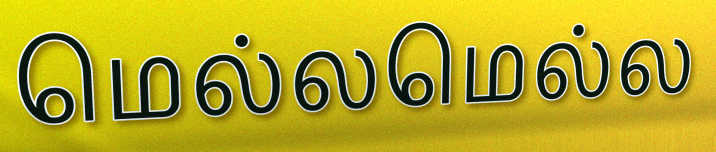
மெல்லமெல்ல